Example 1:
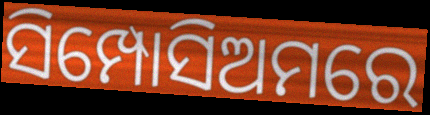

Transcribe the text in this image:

ସିମ୍ପୋସିଅମରେ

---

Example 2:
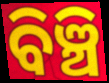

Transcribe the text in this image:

ବିଞ୍ଚି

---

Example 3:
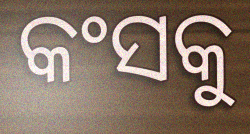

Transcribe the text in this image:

କଂସକୁ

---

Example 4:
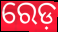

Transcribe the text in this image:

ରେଡ଼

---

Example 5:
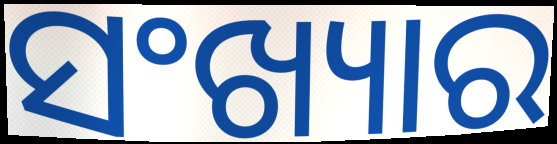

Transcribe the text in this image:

ସଂଖ୍ୟାର